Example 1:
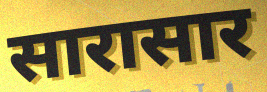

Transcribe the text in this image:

सारासार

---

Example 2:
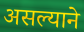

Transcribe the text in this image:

असल्याने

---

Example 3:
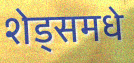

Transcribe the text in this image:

शेड्समधे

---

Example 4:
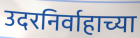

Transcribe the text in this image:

उदरनिर्वाहाच्या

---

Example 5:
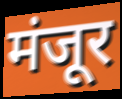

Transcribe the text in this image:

मंजूर